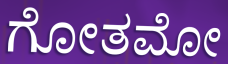
ಗೋತಮೋ